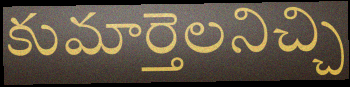
కుమార్తెలనిచ్చి